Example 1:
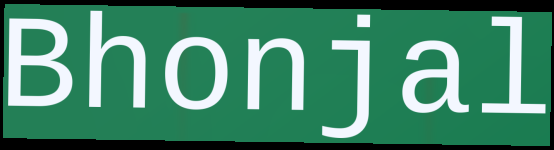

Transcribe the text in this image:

Bhonjal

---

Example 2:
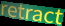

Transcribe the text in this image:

retract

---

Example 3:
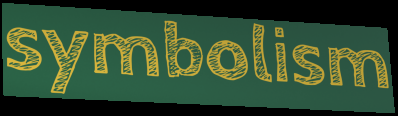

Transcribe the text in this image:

symbolism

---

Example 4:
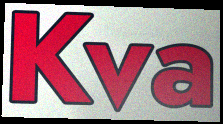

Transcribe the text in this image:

Kva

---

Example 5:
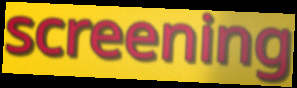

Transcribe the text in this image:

screening